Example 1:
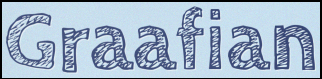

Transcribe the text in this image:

Graafian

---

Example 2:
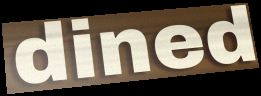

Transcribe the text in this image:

dined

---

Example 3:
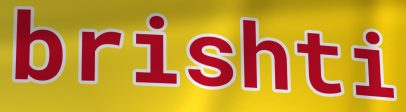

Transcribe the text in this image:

brishti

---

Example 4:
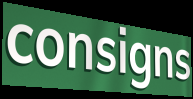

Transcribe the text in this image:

consigns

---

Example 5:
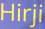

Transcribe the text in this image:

Hirji